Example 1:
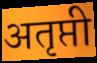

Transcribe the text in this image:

अतृप्ती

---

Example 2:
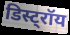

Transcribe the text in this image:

डिस्ट्रॉय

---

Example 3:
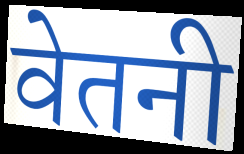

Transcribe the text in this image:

वेतनी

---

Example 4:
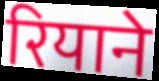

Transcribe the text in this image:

रियाने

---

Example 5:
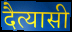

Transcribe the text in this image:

दैत्यासी